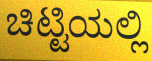
ಚಿಟ್ಟಿಯಲ್ಲಿ